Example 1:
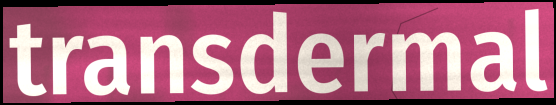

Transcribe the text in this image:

transdermal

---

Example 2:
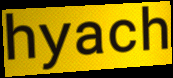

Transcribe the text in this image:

hyach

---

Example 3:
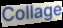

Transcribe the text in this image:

Collage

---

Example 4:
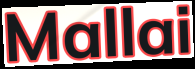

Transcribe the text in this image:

Mallai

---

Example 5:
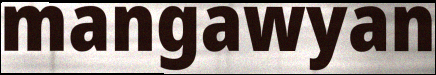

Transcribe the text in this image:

mangawyan